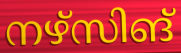
നഴ്സിങ്